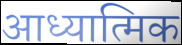
आध्यात्मिक